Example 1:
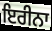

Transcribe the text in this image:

ਇਰੀਨਾ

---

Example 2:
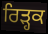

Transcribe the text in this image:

ਰਿੜ੍ਹਕ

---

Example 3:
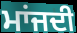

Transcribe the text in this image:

ਮਾਂਜਦੀ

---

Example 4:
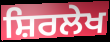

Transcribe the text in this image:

ਸ਼ਿਰਲੇਖ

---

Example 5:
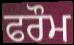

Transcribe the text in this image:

ਫਰੌਮ